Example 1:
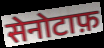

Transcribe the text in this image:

सेनोटाफ़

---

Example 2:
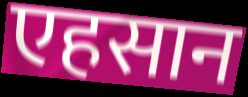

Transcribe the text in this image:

एहसान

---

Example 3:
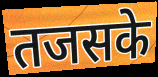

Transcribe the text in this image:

तजसके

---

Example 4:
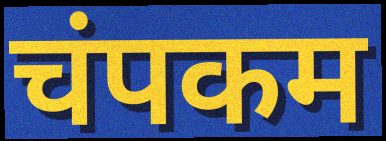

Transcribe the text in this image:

चंपकम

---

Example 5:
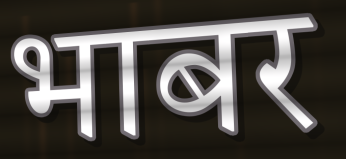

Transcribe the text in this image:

भाबर